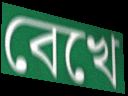
বেখে